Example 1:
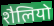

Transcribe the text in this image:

शैलियो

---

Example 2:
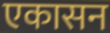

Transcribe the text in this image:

एकासन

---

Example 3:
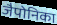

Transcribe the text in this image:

जैपोनिका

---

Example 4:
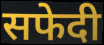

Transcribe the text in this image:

सफेदी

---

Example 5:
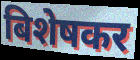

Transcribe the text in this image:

बिशेषकर